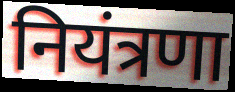
नियंत्रणा